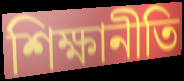
শিক্ষানীতি